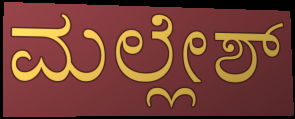
ಮಲ್ಲೇಶ್